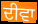
ਦੀਵਾ